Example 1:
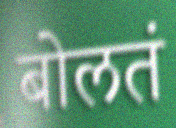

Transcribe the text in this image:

बोलतं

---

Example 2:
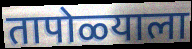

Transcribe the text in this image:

तापोळ्याला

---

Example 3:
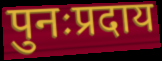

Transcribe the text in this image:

पुनःप्रदाय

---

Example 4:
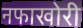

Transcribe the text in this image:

नफाखोरी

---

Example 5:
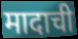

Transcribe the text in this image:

मादाची